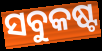
ସବୁକଷ୍ଟ